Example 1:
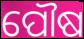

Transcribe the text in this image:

ପୌଷ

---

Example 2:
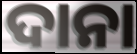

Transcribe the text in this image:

ଦାନା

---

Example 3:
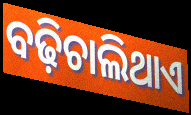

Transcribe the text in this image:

ବଢ଼ିଚାଲିଥାଏ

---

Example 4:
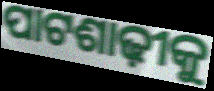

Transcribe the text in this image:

ପାଟଶାଢ଼ୀକୁ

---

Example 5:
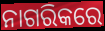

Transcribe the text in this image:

ନାଗରିକରେ